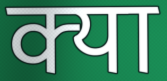
क्‍या